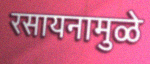
रसायनामुळे